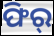
ଫିର୍